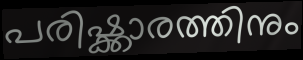
പരിഷ്ക്കാരത്തിനും